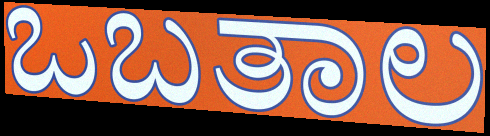
ಒಬತಾಲ